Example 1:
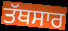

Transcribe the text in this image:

ਤੱਥਸਾਰ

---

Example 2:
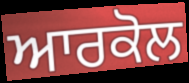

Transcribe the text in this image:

ਆਰਕੋਲ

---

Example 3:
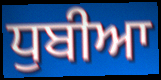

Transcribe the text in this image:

ਧੁਬੀਆ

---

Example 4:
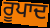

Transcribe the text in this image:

ਰੂਪਾਦ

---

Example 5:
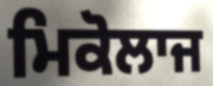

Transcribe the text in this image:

ਮਿਕੋਲਾਜ